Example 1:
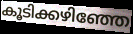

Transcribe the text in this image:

കൂടിക്കഴിഞ്ഞേ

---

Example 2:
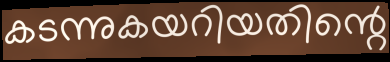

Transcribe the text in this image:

കടന്നുകയറിയതിന്റെ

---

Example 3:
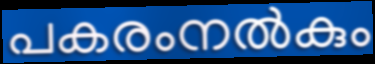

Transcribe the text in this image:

പകരംനൽകും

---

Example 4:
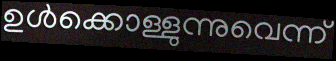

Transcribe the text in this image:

ഉൾക്കൊള്ളുന്നുവെന്ന്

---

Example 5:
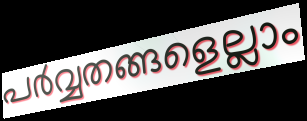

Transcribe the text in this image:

പർവ്വതങ്ങളെല്ലാം